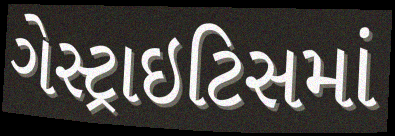
ગેસ્ટ્રાઇટિસમાં